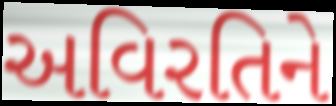
અવિરતિને